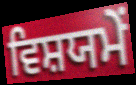
ਵਿਸ਼ਯਮੇਂ